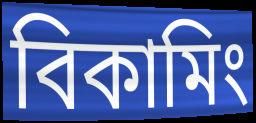
বিকামিং